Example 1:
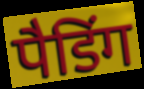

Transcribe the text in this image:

पैडिंग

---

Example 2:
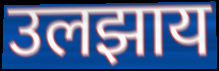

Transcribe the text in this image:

उलझाय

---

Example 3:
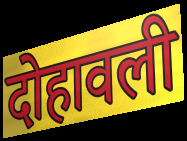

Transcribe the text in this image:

दोहावली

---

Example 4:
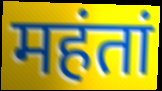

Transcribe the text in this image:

महंतां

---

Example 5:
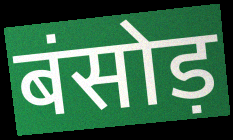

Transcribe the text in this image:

बंसोड़